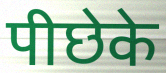
पीछेके